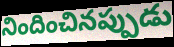
నిందించినప్పుడు